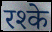
रश्के